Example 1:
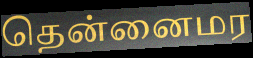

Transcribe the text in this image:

தென்னைமர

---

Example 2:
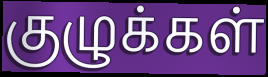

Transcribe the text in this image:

குழுக்கள்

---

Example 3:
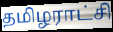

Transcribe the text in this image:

தமிழராட்சி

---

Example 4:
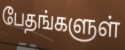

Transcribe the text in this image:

பேதங்களுள்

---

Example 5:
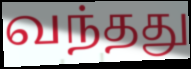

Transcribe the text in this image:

வந்தது